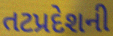
તટપ્રદેશની